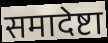
समादेष्टा